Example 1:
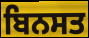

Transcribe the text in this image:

ਬਿਨਸਤ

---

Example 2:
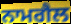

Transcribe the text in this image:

ਨਾਮਗੈਲ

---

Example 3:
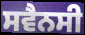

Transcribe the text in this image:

ਸਵੈਨਸੀ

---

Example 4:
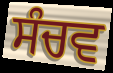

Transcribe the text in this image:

ਸੰਚਵ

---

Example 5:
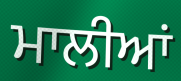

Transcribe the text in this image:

ਮਾਲੀਆਂ